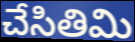
చేసితిమి